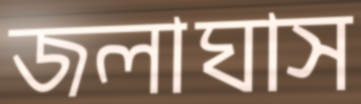
জলাঘাস